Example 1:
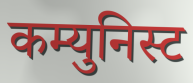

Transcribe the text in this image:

कम्युनिस्ट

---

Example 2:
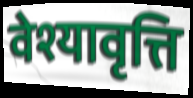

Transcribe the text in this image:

वेश्यावृत्ति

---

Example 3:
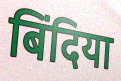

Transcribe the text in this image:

बिंदिया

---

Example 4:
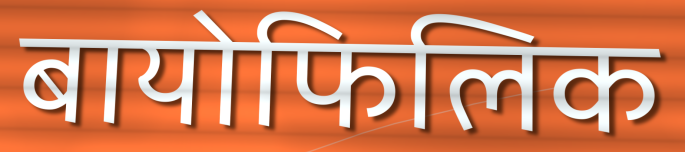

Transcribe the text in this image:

बायोफिलिक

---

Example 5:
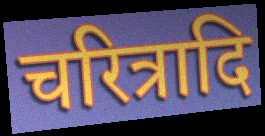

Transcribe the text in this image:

चरित्रादि